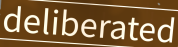
deliberated